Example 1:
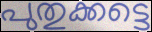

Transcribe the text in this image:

പുതുക്കട്ടെ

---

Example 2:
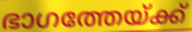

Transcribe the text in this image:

ഭാഗത്തേയ്ക്ക്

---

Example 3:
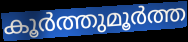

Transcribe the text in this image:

കൂർത്തുമൂർത്ത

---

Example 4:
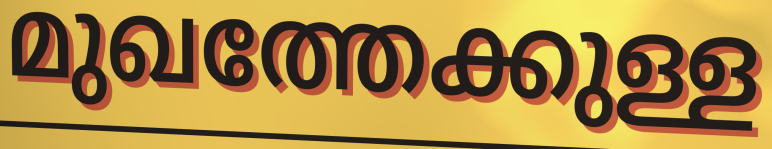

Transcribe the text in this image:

മുഖത്തേക്കുള്ള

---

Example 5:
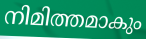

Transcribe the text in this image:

നിമിത്തമാകും